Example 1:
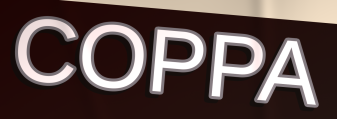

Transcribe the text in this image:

COPPA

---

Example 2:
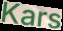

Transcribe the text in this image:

Kars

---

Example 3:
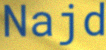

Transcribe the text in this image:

Najd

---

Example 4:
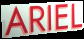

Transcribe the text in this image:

ARIEL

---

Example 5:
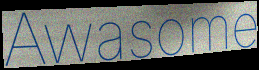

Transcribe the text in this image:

Awasome